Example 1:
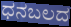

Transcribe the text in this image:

ಧನಬಲದ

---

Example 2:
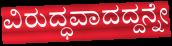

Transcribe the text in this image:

ವಿರುದ್ಧವಾದದ್ದನ್ನೇ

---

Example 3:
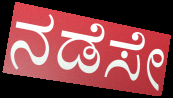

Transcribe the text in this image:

ನಡೆಸೇ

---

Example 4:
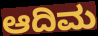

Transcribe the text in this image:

ಆದಿಮ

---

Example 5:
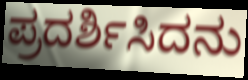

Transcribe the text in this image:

ಪ್ರದರ್ಶಿಸಿದನು